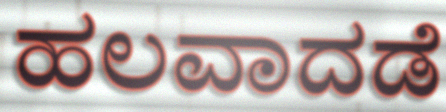
ಹಲವಾದಡೆ